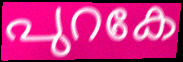
പുറകേ